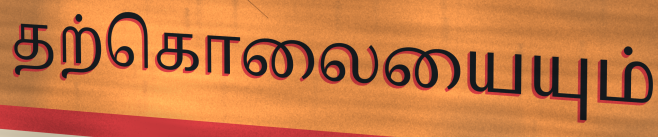
தற்கொலையையும்